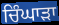
ਚਿੰਘਾੜਾ